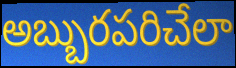
అబ్బురపరిచేలా